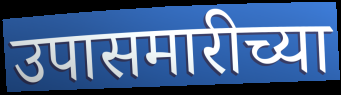
उपासमारीच्या